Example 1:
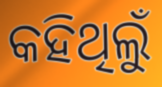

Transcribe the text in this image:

କହିଥିଲୁଁ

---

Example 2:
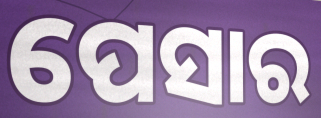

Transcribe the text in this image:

ପେସାର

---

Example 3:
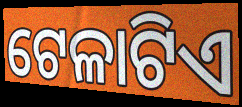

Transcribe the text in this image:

ଟେଳାଟିଏ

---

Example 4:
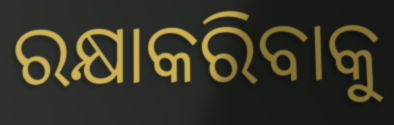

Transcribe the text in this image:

ରକ୍ଷାକରିବାକୁ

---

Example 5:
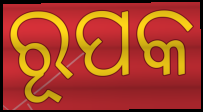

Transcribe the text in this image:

ରୂପକ